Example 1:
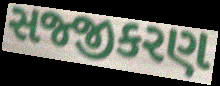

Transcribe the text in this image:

સજ્જીકરણ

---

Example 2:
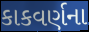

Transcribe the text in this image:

કાકવર્ણના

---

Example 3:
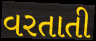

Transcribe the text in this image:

વરતાતી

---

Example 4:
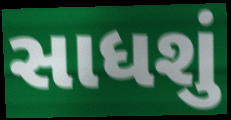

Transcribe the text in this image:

સાધશું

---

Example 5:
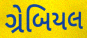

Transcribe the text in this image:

ગ્રેબિયલ